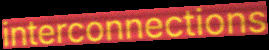
interconnections